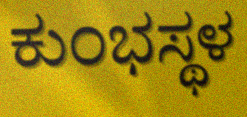
ಕುಂಭಸ್ಥಳ